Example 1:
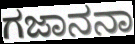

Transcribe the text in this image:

ಗಜಾನನಾ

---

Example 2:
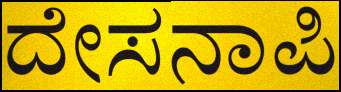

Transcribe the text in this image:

ದೇಸನಾಪಿ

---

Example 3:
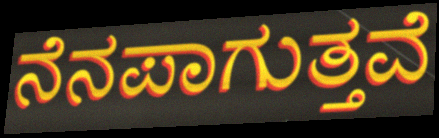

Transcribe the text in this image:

ನೆನಪಾಗುತ್ತವೆ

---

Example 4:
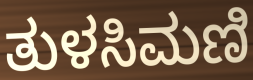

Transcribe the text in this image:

ತುಳಸಿಮಣಿ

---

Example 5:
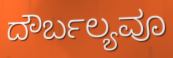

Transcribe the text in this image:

ದೌರ್ಬಲ್ಯವೂ